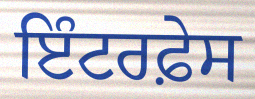
ਇੰਟਰਫ਼ੇਸ